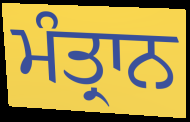
ਮੰਤ੍ਰਾਨ